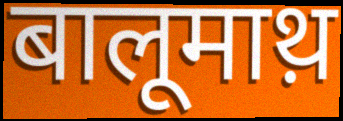
बालूमाथ़